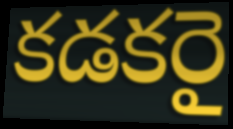
కడకరై